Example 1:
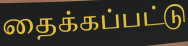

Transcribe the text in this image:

தைக்கப்பட்டு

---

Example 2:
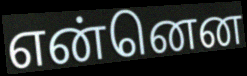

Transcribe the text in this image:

என்னென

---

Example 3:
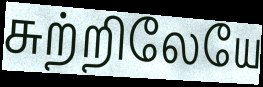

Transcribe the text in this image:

சுற்றிலேயே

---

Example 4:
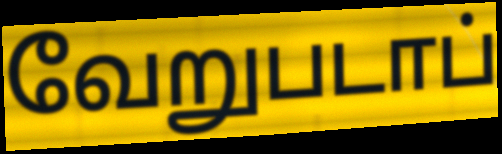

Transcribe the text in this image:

வேறுபடாப்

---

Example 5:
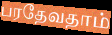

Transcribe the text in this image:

பரதேவதாம்